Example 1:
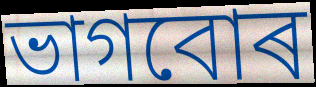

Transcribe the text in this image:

ভাগবোৰ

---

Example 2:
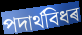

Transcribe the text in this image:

পদাৰ্থবিধৰ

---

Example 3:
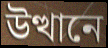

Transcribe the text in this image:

উত্থানে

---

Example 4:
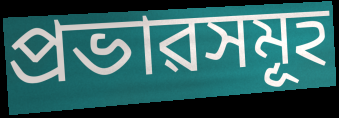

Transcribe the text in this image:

প্ৰভাৱসমূহ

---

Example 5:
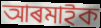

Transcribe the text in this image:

আৰমাইক